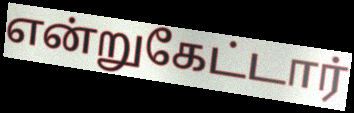
என்றுகேட்டார்